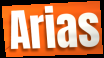
Arias